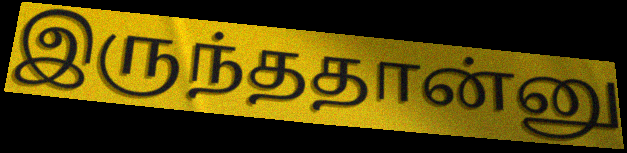
இருந்ததான்னு